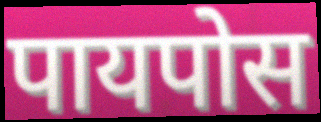
पायपोस